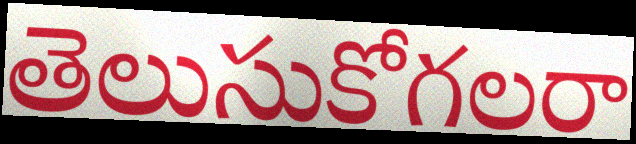
తెలుసుకోగలరా